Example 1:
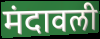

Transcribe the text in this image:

मंदावली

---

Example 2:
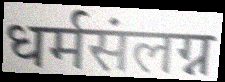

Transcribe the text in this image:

धर्मसंलग्न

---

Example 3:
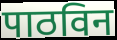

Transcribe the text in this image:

पाठविन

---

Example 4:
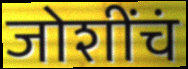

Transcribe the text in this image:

जोशींचं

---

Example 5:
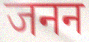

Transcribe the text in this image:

जनन